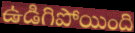
ఉడిగిపోయింది